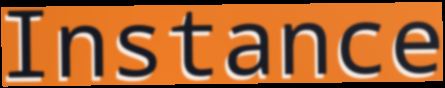
Instance